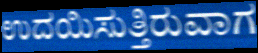
ಉದಯಿಸುತ್ತಿರುವಾಗ